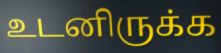
உடனிருக்க